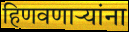
हिणवणाऱ्यांना